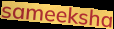
sameeksha